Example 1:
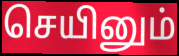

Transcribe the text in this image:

செயினும்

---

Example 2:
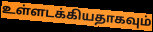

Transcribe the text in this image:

உள்ளடக்கியதாகவும்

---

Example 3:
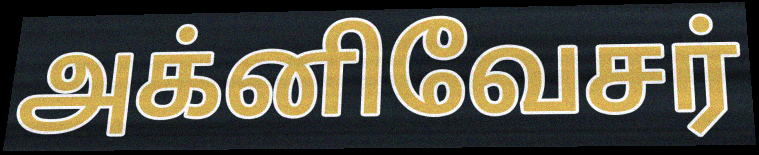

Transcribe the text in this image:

அக்னிவேசர்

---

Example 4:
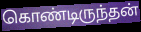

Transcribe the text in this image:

கொண்டிருந்தன்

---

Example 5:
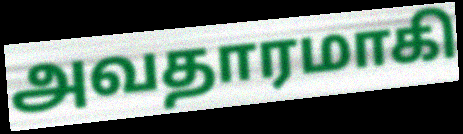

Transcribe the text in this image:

அவதாரமாகி